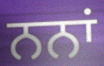
ਨਨਾਂ